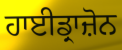
ਹਾਈਡ੍ਰਾਜ਼ੋਨ